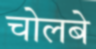
चोलबे